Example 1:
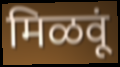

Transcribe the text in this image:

मिळवूं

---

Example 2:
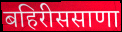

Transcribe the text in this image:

बहिरीससाणा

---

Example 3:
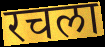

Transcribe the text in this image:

रचला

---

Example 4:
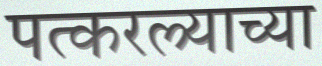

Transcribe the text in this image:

पत्करल्याच्या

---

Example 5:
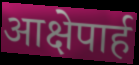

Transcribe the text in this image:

आक्षेपार्ह